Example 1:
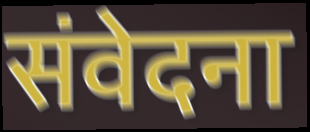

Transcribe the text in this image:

संवेदना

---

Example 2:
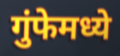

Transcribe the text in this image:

गुंफेमध्ये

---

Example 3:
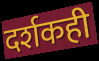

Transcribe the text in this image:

दर्शकही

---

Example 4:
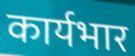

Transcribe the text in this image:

कार्यभार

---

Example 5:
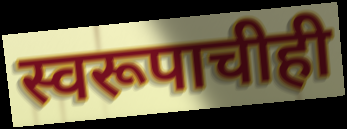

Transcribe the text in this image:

स्वरूपाचीही